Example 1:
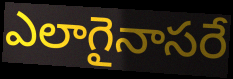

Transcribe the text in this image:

ఎలాగైనాసరే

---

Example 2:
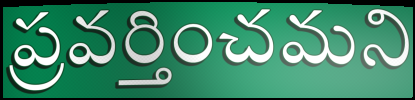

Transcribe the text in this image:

ప్రవర్తించమని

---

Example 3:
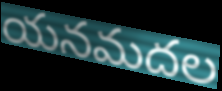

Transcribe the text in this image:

యనమదల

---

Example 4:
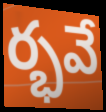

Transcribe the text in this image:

ర్భవే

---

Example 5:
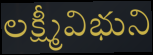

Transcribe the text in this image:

లక్ష్మీవిభుని